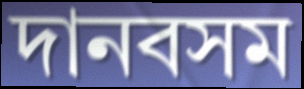
দানবসম